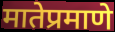
मातेप्रमाणे